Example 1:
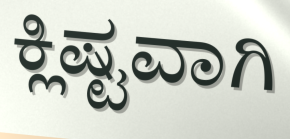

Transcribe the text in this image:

ಕ್ಲಿಷ್ಟವಾಗಿ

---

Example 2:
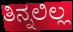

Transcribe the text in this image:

ತಿನ್ನಲಿಲ್ಲ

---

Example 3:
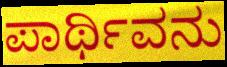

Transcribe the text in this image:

ಪಾರ್ಥಿವನು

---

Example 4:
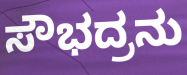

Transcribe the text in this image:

ಸೌಭದ್ರನು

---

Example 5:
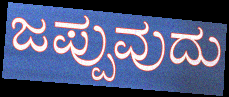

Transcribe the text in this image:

ಜಪ್ಪುವುದು